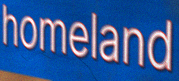
homeland